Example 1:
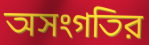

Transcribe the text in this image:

অসংগতির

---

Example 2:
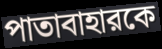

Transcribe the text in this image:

পাতাবাহারকে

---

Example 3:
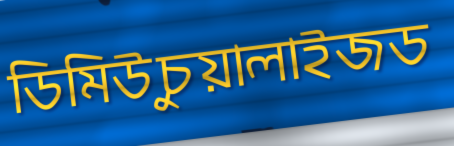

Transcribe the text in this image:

ডিমিউচুয়ালাইজড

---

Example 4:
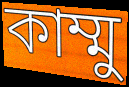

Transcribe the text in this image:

কাম্মু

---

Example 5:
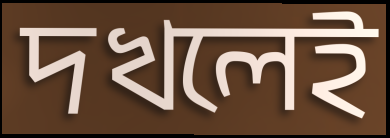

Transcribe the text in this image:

দখলেই